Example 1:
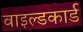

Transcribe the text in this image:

वाइल्डकार्ड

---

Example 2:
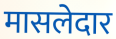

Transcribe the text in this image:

मासलेदार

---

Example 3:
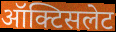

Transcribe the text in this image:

ऑक्टिसलेट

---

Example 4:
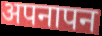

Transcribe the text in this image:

अपनापन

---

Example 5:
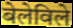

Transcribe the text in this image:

बेलेविले